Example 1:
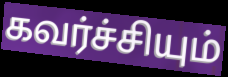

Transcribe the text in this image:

கவர்ச்சியும்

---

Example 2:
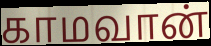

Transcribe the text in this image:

காமவான்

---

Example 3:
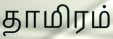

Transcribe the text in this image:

தாமிரம்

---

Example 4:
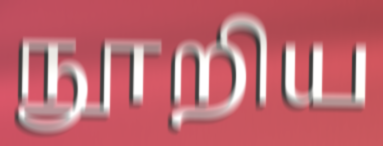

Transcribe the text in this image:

நூறிய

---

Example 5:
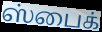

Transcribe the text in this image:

ஸ்பைக்